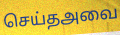
செய்தஅவை